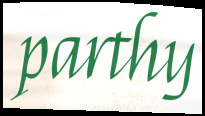
parthy